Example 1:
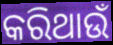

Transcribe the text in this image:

କରିଥାଉଁ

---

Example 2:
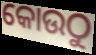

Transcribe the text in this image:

କୋଉଠୁ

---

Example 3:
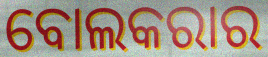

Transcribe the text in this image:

ବୋଲକରାର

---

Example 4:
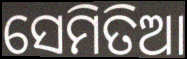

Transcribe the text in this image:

ସେମିତିଆ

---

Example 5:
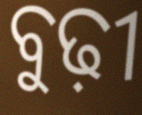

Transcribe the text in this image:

ବୁଢ଼ୀ